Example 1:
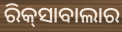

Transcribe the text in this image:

ରିକ୍‌ସାବାଲାର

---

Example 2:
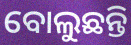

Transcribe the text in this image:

ବୋଲୁଛନ୍ତି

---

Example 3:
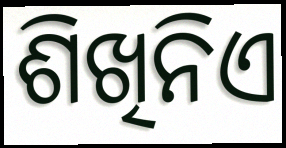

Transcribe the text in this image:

ଶିଖିନିଏ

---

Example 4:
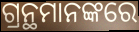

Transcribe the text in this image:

ଗ୍ରନ୍ଥମାନଙ୍କରେ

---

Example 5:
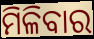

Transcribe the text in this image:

ମିଳିବାର